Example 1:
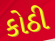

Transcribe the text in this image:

કોઠી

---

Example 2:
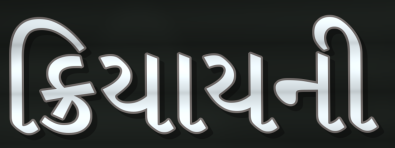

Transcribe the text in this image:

ક્રિયાયની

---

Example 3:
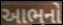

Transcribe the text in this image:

આભનો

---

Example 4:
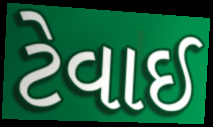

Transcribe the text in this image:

ટેવાઈ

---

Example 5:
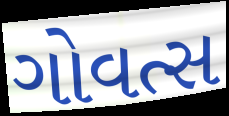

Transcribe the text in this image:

ગોવત્સ